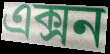
এক্সন